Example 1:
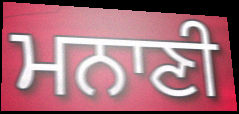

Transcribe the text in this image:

ਮਨਾਣੀ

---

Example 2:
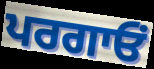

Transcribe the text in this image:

ਪਰਗਾਓਂ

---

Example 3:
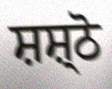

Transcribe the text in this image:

ਸ਼ਸ਼੍ਠੋ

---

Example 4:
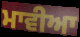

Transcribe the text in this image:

ਮਾਵੀਆ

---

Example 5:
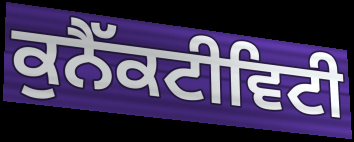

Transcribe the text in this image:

ਕੁਨੈੱਕਟੀਵਿਟੀ